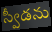
స్వీడను